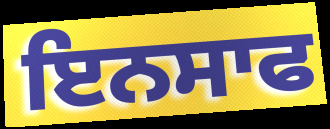
ਇਨਸਾਫ